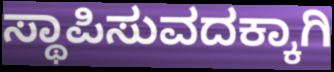
ಸ್ಥಾಪಿಸುವದಕ್ಕಾಗಿ